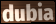
dubia